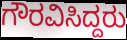
ಗೌರವಿಸಿದ್ದರು